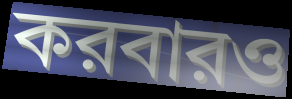
করবারও